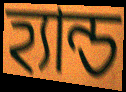
হ্যান্ড